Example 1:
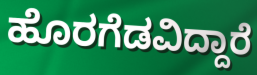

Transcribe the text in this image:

ಹೊರಗೆಡವಿದ್ದಾರೆ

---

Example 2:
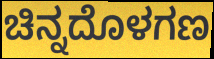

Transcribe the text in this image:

ಚಿನ್ನದೊಳಗಣ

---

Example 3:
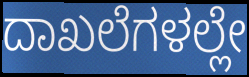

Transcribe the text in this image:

ದಾಖಲೆಗಳಲ್ಲೇ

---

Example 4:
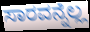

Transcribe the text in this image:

ಸಾರವನ್ನೆಲ್ಲ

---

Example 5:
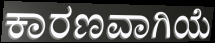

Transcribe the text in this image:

ಕಾರಣವಾಗಿಯೆ